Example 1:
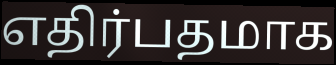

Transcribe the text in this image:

எதிர்பதமாக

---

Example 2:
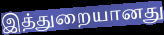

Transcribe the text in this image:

இத்துறையானது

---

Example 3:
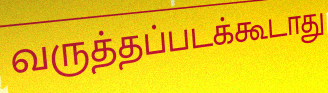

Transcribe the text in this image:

வருத்தப்படக்கூடாது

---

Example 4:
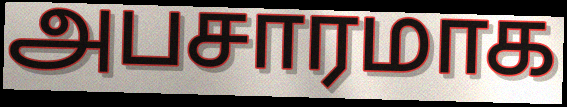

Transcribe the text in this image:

அபசாரமாக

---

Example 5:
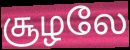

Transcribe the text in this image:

சூழலே